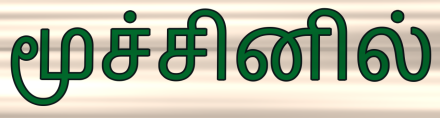
மூச்சினில்